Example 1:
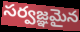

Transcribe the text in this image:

సర్వజ్ఞమైన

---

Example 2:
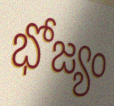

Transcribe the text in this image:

భోజ్యం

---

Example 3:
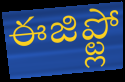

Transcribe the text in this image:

ఈజిప్ట్లో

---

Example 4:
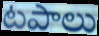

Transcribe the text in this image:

టపాలు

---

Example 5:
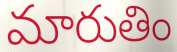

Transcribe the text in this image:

మారుతిం